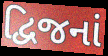
દ્વિજનાં